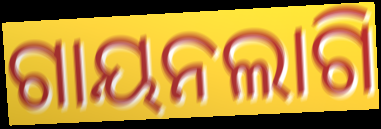
ଗାୟନଲାଗି